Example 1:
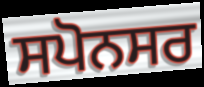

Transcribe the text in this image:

ਸਪੋਨਸਰ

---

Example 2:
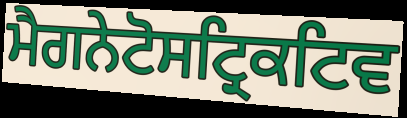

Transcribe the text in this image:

ਮੈਗਨੇਟੋਸਟ੍ਰਿਕਟਿਵ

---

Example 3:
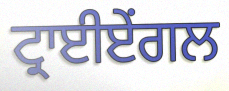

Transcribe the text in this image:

ਟ੍ਰਾਈਏਂਗਲ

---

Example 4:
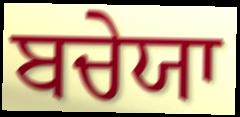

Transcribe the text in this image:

ਬਚੇਯਾ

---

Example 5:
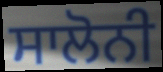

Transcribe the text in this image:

ਸਾਲੋਨੀ